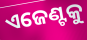
ଏଜେଣ୍ଟକୁ